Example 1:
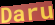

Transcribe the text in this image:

Daru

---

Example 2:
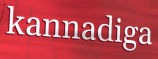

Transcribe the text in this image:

kannadiga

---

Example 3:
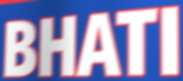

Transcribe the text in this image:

BHATI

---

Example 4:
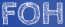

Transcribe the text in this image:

FOH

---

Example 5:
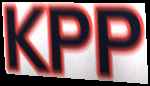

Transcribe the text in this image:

KPP